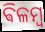
ଵିଳମ୍ବ